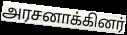
அரசனாக்கினர்